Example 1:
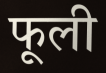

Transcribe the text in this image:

फूली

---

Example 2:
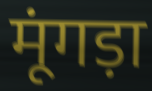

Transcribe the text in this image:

मूंगड़ा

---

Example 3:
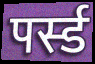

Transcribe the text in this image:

पर्स्ड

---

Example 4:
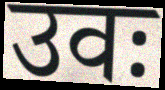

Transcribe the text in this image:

उवः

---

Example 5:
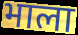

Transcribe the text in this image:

भाला